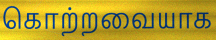
கொற்றவையாக